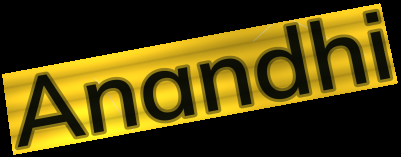
Anandhi